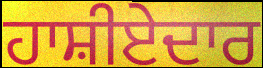
ਹਾਸ਼ੀਏਦਾਰ